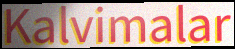
Kalvimalar